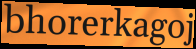
bhorerkagoj